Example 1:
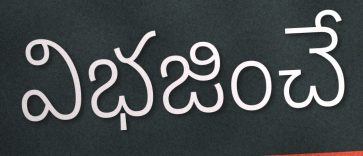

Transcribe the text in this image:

విభజించే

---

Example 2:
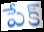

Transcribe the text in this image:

పేక్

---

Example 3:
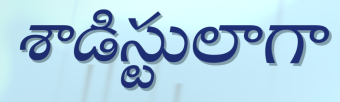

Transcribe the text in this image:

శాడిస్టులాగా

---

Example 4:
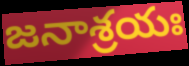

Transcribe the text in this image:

జనాశ్రయః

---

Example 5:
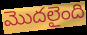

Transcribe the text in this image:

మొదలైంది